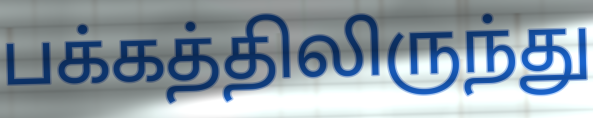
பக்கத்திலிருந்து